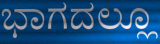
ಭಾಗದಲ್ಲೂ